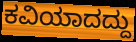
ಕವಿಯಾದದ್ದು